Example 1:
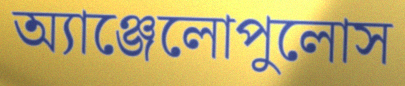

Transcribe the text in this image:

অ্যাঞ্জেলোপুলোস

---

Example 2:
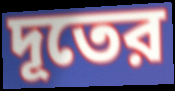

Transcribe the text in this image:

দূতের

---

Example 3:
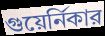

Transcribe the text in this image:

গুয়ের্নিকার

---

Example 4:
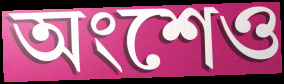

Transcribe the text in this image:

অংশেও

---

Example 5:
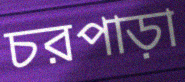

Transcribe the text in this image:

চরপাড়া